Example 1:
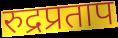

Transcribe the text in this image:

रुद्रप्रताप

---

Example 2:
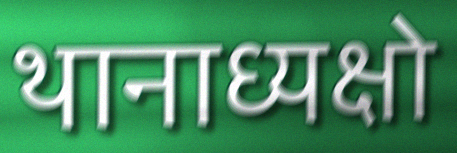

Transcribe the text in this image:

थानाध्यक्षो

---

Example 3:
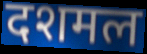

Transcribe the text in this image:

दशमल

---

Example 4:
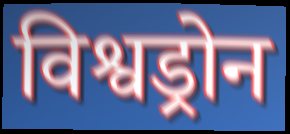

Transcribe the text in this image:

विश्वड्रोन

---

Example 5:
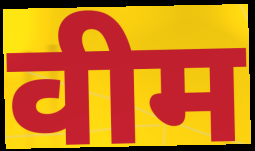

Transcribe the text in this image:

वीम